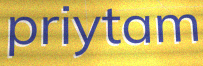
priytam